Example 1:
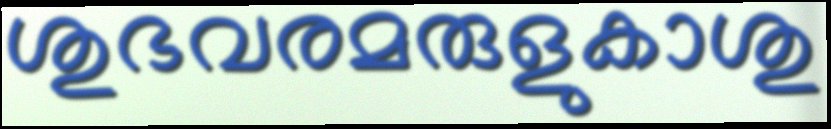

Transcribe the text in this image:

ശുഭവരമരുളുകാശു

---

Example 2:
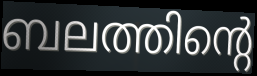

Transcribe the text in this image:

ബലത്തിന്റെ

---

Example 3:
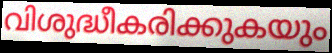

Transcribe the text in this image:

വിശുദ്ധീകരിക്കുകയും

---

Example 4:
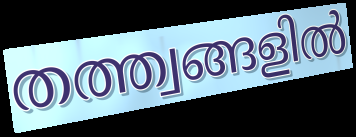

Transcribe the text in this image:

തത്ത്വങ്ങളിൽ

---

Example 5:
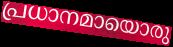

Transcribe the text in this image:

പ്രധാനമായൊരു